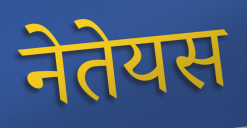
नेतेयस